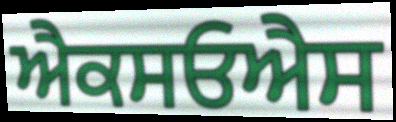
ਐਕਸਓਐਸ